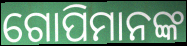
ଗୋପିମାନଙ୍କ